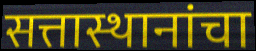
सत्तास्थानांचा